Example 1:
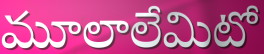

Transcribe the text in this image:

మూలాలేమిటో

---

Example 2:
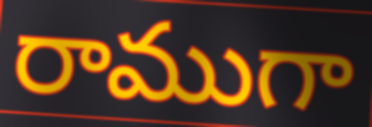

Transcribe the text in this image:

రాముగా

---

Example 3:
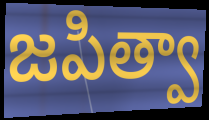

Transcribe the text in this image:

జపిత్వా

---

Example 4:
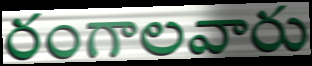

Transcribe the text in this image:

రంగాలవారు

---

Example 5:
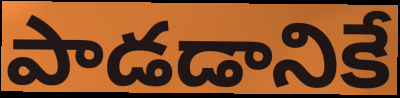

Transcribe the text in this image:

పాడడానికే